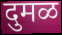
दुमळ